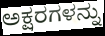
ಅಕ್ಷರಗಳನ್ನು